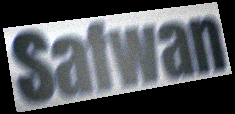
Safwan